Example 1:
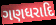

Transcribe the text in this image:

ગણધરાદિ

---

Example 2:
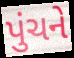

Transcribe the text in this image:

પુંચને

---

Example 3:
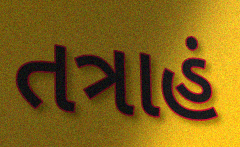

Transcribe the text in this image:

તત્રાહં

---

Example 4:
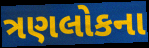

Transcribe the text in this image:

ત્રણલોકના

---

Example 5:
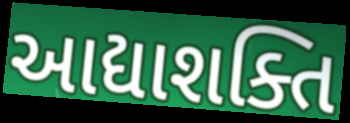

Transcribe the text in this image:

આદ્યાશક્તિ